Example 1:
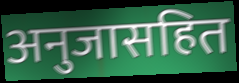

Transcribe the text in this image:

अनुजासहित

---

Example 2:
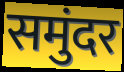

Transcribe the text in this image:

समुंदर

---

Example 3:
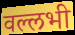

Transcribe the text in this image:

वल्लभी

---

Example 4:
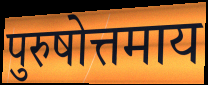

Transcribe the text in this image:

पुरुषोत्तमाय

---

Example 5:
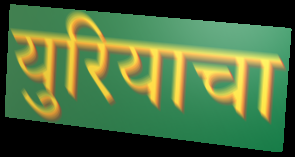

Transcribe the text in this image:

युरियाचा